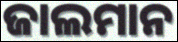
ଜାଲମାନ